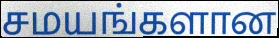
சமயங்களான